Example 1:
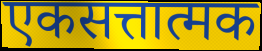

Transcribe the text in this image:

एकसत्तात्मक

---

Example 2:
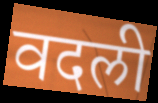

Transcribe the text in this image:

वदली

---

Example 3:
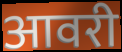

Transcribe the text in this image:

आवरी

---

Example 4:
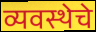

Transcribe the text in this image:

व्यवस्थेचे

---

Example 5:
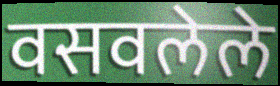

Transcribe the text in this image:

वसवलेले